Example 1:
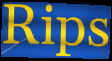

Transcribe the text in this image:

Rips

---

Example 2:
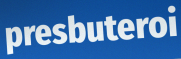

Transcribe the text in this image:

presbuteroi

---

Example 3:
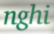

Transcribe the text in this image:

nghi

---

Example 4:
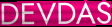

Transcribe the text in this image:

DEVDAS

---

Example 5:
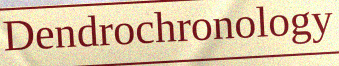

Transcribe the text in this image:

Dendrochronology